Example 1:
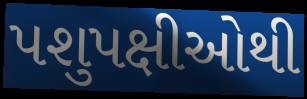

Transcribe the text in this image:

પશુપક્ષીઓથી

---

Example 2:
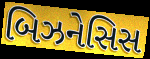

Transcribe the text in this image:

બિઝનેસિસ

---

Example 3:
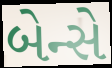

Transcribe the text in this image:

બેન્સે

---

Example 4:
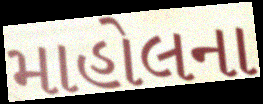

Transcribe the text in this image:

માહોલના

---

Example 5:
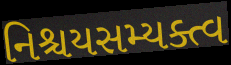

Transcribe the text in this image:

નિશ્ચયસમ્યક્ત્વ